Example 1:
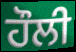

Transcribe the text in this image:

ਹੌਲੀ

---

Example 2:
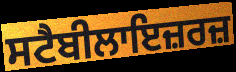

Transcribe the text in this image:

ਸਟੈਬੀਲਾਇਜ਼ਰਜ਼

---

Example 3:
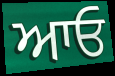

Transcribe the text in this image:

ਆਓ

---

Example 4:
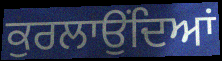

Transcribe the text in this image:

ਕੁਰਲਾਉਂਦਿਆਂ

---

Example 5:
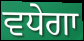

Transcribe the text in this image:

ਵਧੇਗਾ